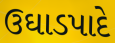
ઉઘાડપાદે